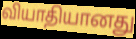
வியாதியானது